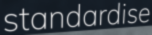
standardise